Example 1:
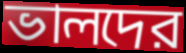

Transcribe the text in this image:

ভালদের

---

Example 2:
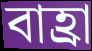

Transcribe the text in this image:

বাহ্রা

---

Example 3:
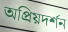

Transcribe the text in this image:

অপ্রিয়দর্শন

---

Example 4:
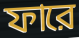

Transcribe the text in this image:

ফারে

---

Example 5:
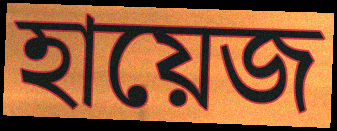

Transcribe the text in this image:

হায়েজ